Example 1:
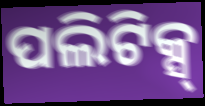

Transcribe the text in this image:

ପଲିଟିକ୍ସ୍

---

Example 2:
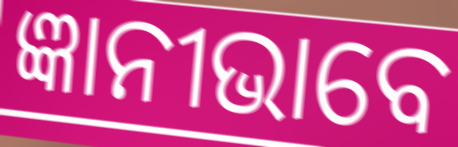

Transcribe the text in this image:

ଜ୍ଞାନୀଭାବେ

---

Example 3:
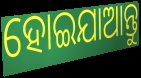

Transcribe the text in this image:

ହୋଇଯାଆନ୍ତୁ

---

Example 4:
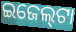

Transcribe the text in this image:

ଇଜେଲ୍‍ଟା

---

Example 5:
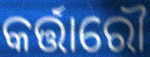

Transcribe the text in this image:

କର୍ତ୍ତାରୌ